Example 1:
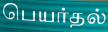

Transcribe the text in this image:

பெயர்தல்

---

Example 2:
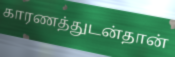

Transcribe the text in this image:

காரணத்துடன்தான்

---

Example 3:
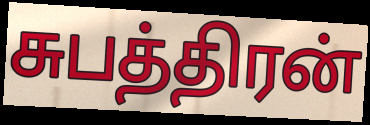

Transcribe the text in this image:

சுபத்திரன்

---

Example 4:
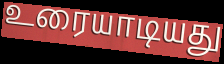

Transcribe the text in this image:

உரையாடியது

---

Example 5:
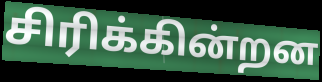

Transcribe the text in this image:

சிரிக்கின்றன